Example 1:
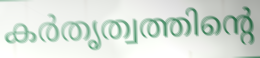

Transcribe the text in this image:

കർതൃത്വത്തിന്റെ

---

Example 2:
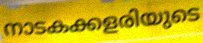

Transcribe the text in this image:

നാടകക്കളരിയുടെ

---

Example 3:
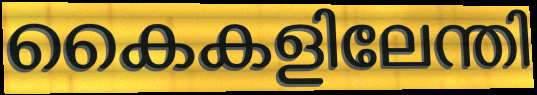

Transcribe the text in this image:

കൈകളിലേന്തി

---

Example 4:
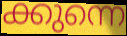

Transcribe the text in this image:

ക്കുന്നെ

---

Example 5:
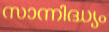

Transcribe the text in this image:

സാന്നിദ്ധ്യം